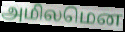
அமிலமென